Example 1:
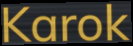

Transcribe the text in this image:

Karok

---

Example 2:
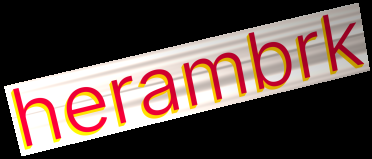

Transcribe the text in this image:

herambrk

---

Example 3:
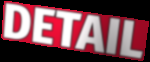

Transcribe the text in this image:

DETAIL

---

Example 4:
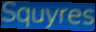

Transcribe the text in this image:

Squyres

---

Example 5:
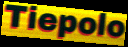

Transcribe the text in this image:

Tiepolo